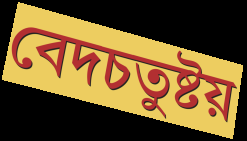
বেদচতুষ্টয়